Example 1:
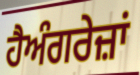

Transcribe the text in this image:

ਹੈਅੰਗਰੇਜ਼ਾਂ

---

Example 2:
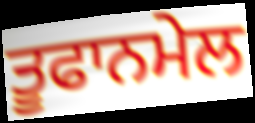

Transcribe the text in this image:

ਤੂਫਾਨਮੇਲ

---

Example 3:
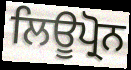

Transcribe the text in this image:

ਲਿਊਪ੍ਰੋਨ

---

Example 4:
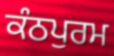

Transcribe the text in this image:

ਕੰਠਪੁਰਮ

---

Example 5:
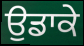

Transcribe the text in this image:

ਉਡਾਕੇ